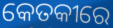
କେତକୀରେ